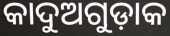
କାଦୁଅଗୁଡ଼ାକ